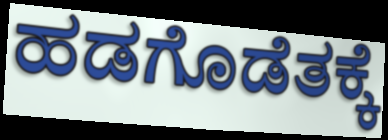
ಹಡಗೊಡೆತಕ್ಕೆ